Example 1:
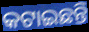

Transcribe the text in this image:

କଟାଇଛନ୍ତି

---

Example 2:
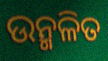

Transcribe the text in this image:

ଉନ୍ମଳିତ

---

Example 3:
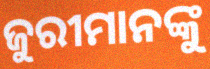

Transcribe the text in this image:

ଜୁରୀମାନଙ୍କୁ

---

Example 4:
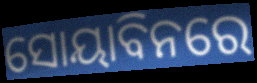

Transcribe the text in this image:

ସୋୟାବିନରେ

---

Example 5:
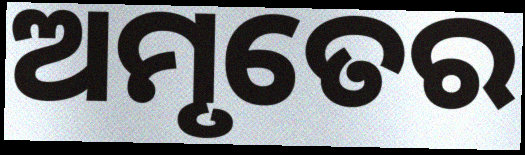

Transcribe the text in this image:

ଅମୃତେର